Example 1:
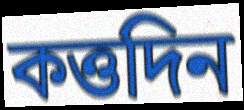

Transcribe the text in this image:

কত্তদিন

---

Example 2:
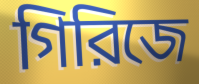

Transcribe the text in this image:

গিরিজে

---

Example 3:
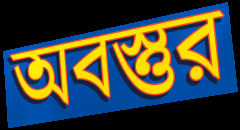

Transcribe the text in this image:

অবস্তুর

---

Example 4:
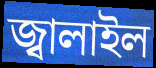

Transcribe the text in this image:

জ্বালাইল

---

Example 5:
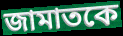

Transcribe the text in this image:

জামাতকে